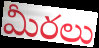
మీరలు